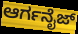
ಆರ್ಗನೈಜ್